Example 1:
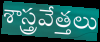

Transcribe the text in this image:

శాస్త్రవేత్తలు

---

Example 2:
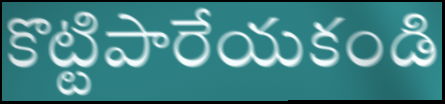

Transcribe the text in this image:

కొట్టిపారేయకండి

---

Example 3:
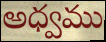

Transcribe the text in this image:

అధ్వము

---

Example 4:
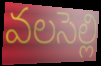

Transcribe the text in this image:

వలసెల్లి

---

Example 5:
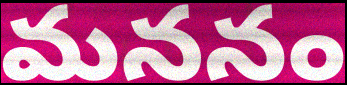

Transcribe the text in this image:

మననం